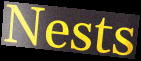
Nests